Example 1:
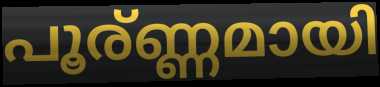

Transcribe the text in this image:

പൂര്ണ്ണമായി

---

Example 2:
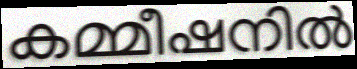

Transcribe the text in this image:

കമ്മീഷനിൽ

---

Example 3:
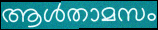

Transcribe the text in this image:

ആൾതാമസം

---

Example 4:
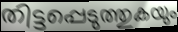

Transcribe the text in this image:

തിട്ടപ്പെടുത്തുകയും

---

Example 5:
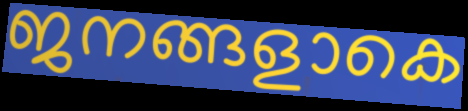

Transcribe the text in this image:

ജനങ്ങളാകെ